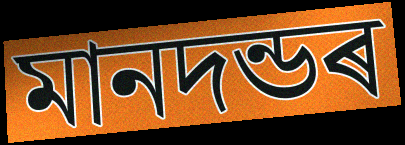
মানদন্ডৰ